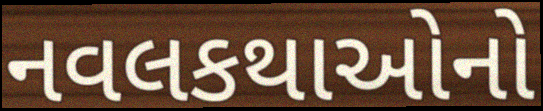
નવલકથાઓનો